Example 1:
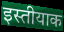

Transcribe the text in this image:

इस्तीयाक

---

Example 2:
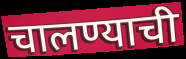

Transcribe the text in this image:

चालण्याची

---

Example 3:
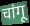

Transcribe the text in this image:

चांगू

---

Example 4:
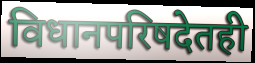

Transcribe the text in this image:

विधानपरिषदेतही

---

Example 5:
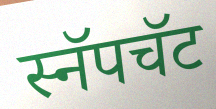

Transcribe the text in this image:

स्नॅपचॅट